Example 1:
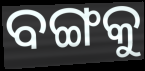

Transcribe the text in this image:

ବଙ୍ଗକୁ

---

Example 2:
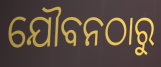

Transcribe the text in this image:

ଯୌବନଠାରୁ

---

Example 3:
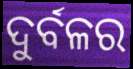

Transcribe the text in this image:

ଦୁର୍ବଳର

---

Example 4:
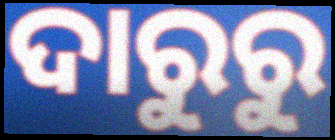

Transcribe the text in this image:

ଦାରୁରୁ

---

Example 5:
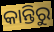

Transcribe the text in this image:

କାନ୍ତିରୁ